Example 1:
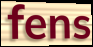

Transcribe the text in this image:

fens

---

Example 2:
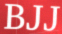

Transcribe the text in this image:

BJJ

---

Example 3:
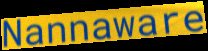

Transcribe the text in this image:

Nannaware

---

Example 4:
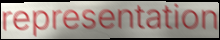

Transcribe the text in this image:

representation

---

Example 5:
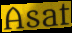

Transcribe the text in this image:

Asat